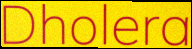
Dholera